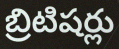
బ్రిటిషర్లు